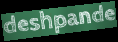
deshpande